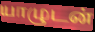
யாழுடன்